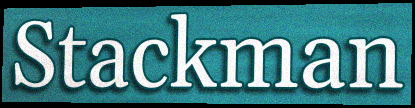
Stackman